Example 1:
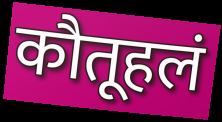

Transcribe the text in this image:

कौतूहलं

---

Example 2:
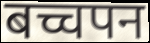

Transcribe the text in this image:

बच्चपन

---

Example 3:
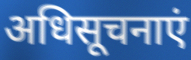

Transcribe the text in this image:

अधिसूचनाएं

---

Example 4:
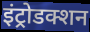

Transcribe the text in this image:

इंट्रोडक्शन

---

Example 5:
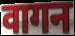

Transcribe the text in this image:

वागन